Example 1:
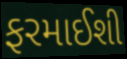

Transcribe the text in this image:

ફરમાઈશી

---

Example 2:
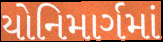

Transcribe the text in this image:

યોનિમાર્ગમાં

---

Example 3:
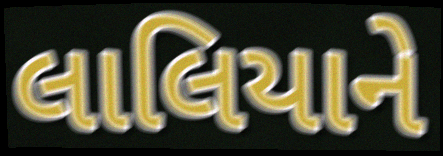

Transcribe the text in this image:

લાલિયાને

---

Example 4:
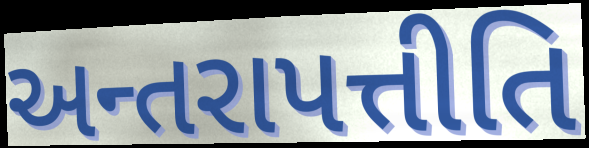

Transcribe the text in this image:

અન્તરાપત્તીતિ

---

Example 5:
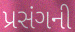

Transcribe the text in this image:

પ્રસંગની